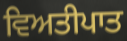
ਵਿਅਤੀਪਾਤ